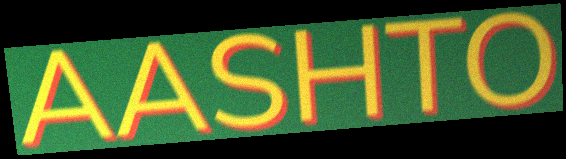
AASHTO